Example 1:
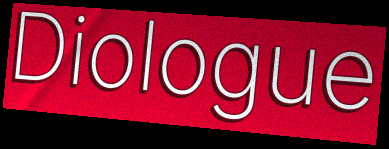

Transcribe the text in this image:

Diologue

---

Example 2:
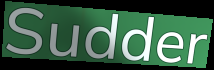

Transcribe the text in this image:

Sudder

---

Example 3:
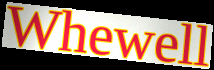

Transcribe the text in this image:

Whewell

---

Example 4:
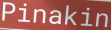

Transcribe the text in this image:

Pinakin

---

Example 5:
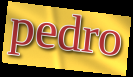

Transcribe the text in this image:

pedro